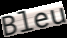
Bleu